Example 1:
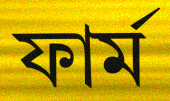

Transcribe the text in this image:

ফাৰ্ম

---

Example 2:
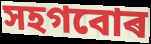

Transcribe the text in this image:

সহগবোৰ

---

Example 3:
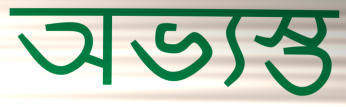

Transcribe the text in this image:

অভ্যস্ত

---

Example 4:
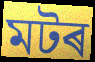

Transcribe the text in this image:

মটৰ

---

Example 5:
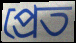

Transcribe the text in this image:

প্ৰেত